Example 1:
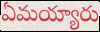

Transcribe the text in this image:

ఏమయ్యారు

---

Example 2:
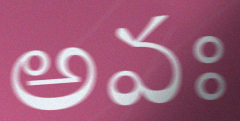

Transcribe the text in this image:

అవః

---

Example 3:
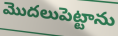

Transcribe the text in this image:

మొదలుపెట్టాను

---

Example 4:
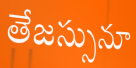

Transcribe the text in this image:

తేజస్సునూ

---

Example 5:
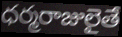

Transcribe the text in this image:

ధర్మరాజులైతే